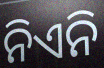
ନିଏନି